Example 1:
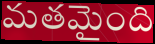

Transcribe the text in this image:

మతమైంది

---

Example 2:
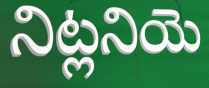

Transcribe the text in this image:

నిట్లనియె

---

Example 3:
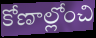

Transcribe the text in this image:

కోణాల్లోంచి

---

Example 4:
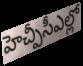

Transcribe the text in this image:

హెచ్పీసీఎల్లో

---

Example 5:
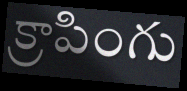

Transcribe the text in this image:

క్రాపింగు